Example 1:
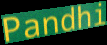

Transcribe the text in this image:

Pandhi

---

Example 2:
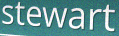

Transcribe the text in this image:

stewart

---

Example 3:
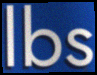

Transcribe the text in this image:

lbs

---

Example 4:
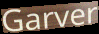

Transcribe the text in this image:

Garver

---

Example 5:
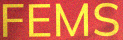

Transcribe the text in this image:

FEMS